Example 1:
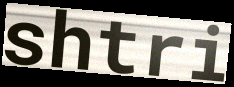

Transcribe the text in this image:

shtri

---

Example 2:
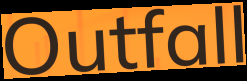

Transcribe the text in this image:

Outfall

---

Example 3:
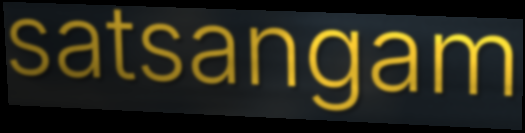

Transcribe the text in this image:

satsangam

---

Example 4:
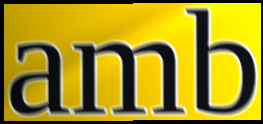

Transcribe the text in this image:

amb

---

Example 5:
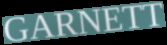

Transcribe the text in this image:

GARNETT